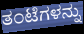
ತಂಟೆಗಳನ್ನು